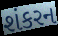
શંકરન